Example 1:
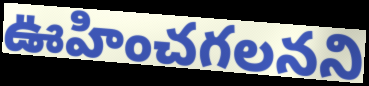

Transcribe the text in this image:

ఊహించగలనని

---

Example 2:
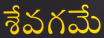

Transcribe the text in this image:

శేవగమే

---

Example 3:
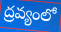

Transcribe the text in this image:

ద్రవ్యంలో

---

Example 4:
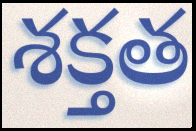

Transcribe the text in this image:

శక్తత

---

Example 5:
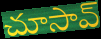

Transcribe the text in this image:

చూసావ్